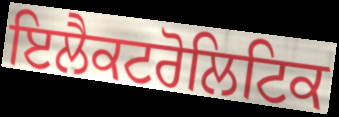
ਇਲੈਕਟਰੋਲਿਟਿਕ